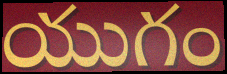
యుగం